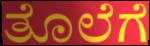
ತೊಲೆಗೆ